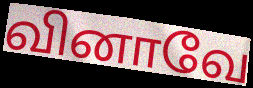
வினாவே